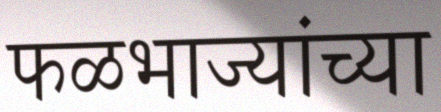
फळभाज्यांच्या